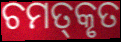
ଚମତ୍‍କୃତ